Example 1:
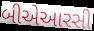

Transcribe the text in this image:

બીએઆરસી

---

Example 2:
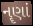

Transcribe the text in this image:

નૄણાં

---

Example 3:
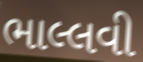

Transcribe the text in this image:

ભાલ્લવી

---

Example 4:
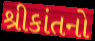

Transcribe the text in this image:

શ્રીકાંતનો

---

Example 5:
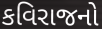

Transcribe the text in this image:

કવિરાજનો